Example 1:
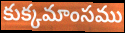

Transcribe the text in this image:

కుక్కమాంసము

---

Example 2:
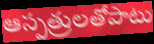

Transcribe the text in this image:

ఆస్పత్రులతోపాటు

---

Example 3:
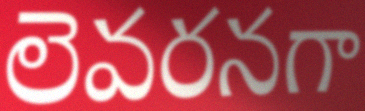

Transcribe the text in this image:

లెవరనగా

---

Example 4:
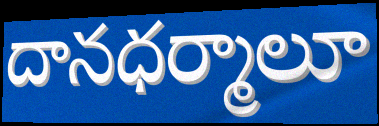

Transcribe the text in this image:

దానధర్మాలూ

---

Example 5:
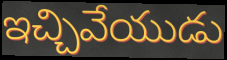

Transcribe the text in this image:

ఇచ్చివేయుడు